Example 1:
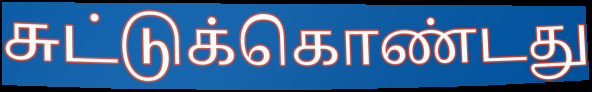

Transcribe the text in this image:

சுட்டுக்கொண்டது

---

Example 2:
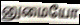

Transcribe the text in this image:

னுமையோ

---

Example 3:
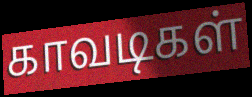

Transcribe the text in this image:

காவடிகள்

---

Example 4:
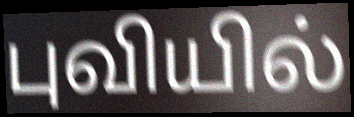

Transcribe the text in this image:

புவியில்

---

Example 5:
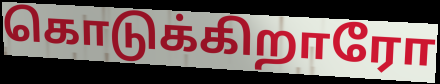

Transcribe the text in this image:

கொடுக்கிறாரோ